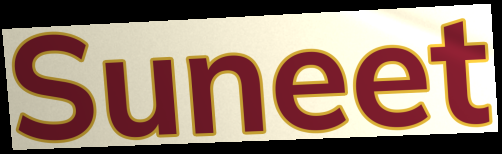
Suneet